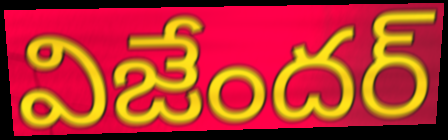
విజేందర్